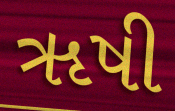
ૠષી